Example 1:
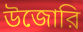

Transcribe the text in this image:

উজোরি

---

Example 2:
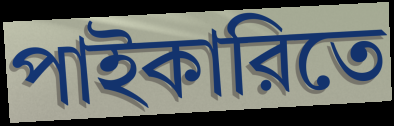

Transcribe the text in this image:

পাইকারিতে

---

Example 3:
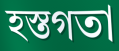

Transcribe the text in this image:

হস্তগতা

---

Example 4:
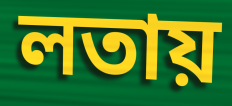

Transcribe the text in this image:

লতায়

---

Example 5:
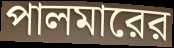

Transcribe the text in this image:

পালমারের